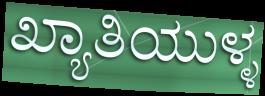
ಖ್ಯಾತಿಯುಳ್ಳ